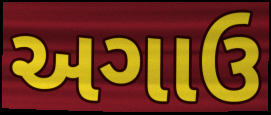
અગાઉ